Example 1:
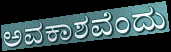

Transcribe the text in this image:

ಅವಕಾಶವೆಂದು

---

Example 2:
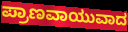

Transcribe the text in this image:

ಪ್ರಾಣವಾಯುವಾದ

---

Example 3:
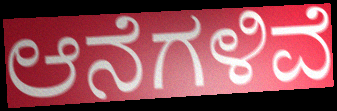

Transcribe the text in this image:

ಆನೆಗಳಿವೆ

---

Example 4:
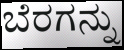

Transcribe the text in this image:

ಬೆರಗನ್ನು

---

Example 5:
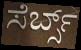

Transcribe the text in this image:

ಸೆರ್ಬ್ಸ್